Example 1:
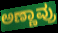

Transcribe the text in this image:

ಅಣ್ಣಾವ್ರು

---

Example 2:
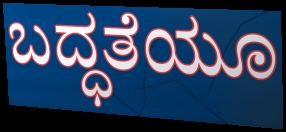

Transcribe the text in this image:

ಬದ್ಧತೆಯೂ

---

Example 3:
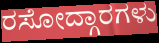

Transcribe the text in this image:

ರಸೋದ್ಗಾರಗಳು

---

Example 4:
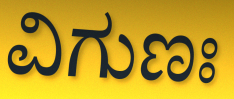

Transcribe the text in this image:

ವಿಗುಣಃ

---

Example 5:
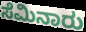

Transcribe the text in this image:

ಸೆಮಿನಾರು